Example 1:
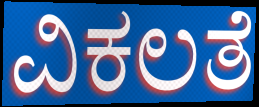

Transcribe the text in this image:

ವಿಕಲತೆ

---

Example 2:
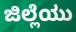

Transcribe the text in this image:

ಜಿಲ್ಲೆಯು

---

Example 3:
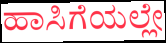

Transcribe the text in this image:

ಹಾಸಿಗೆಯಲ್ಲೇ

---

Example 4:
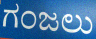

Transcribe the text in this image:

ಗಂಜಲು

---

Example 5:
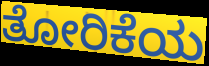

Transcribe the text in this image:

ತೋರಿಕೆಯ